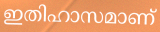
ഇതിഹാസമാണ്